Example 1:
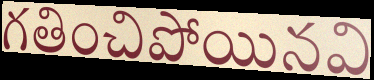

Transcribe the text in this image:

గతించిపోయినవి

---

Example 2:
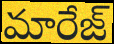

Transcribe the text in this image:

మారేజ్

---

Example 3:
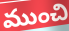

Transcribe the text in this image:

ముంచి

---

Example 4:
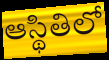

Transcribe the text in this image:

ఆస్థితిలో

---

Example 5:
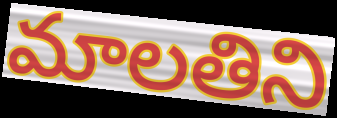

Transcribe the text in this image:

మాలతిని